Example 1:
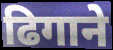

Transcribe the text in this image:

ढिगाने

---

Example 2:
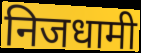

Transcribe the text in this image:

निजधामी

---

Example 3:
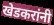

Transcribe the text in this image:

खेडकरांनी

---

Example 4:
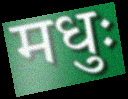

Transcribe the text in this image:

मधुः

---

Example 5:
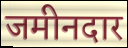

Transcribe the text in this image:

जमीनदार